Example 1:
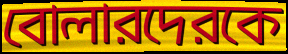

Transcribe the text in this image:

বোলারদেরকে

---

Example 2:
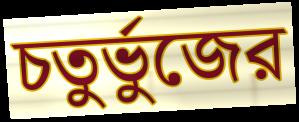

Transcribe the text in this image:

চতুর্ভুজের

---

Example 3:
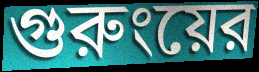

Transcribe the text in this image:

গুরুংয়ের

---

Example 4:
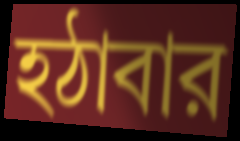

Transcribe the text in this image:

হঠাবার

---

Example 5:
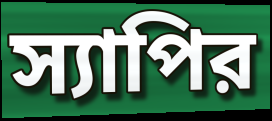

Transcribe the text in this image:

স্যাপির